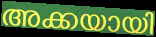
അക്കയായി